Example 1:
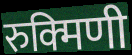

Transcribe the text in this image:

रुक्‍मिणी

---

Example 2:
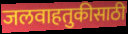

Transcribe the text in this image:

जलवाहतुकीसाठी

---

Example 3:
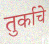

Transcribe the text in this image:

तुर्काचे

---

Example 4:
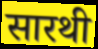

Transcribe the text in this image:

सारथी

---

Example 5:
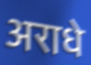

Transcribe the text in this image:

अराधे